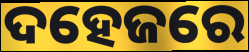
ଦହେଜରେ